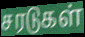
சரடுகள்